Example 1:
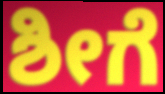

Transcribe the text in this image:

ಶೀಗೆ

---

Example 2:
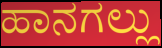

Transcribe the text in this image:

ಹಾನಗಲ್ಲು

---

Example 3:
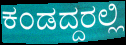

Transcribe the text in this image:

ಕಂಡದ್ದರಲ್ಲಿ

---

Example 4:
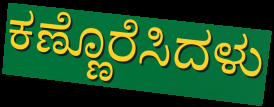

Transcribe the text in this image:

ಕಣ್ಣೊರೆಸಿದಳು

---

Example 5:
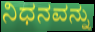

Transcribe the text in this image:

ನಿಧನವನ್ನು